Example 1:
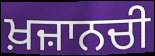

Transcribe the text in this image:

ਖ਼ਜ਼ਾਨਚੀ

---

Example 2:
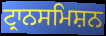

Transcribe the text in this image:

ਟ੍ਰਾਨਸਮਿਸ਼ਨ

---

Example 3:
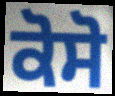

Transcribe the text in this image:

ਕੋਸੋ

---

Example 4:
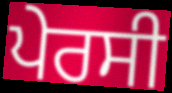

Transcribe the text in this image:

ਪੇਰਸੀ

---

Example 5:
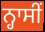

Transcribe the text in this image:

ਨ੍ਹਾਸੀਂ